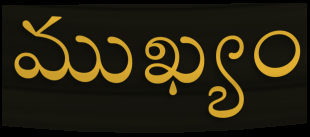
ముఖ్యం